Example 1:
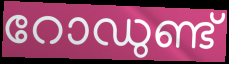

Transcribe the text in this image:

റോഡുണ്ട്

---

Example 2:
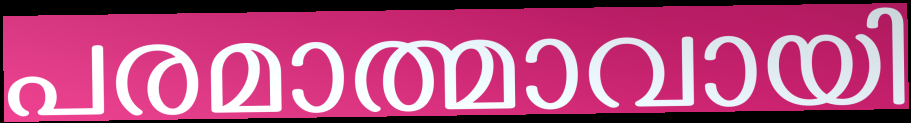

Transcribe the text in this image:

പരമാത്മാവായി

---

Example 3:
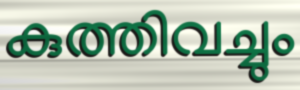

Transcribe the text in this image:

കുത്തിവച്ചും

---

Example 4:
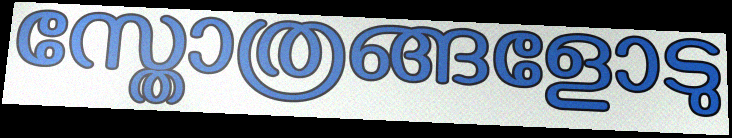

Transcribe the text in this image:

സ്തോത്രങ്ങളോടു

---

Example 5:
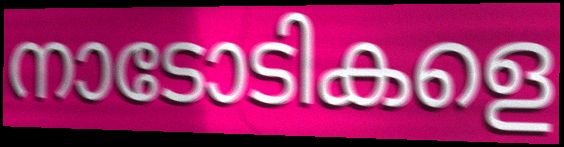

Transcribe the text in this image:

നാടോടികളെ